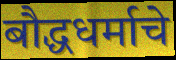
बौद्धधर्माचे